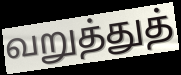
வறுத்துத்